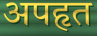
अपहृत